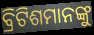
ବ୍ରିଟିଶମାନଙ୍କୁ